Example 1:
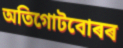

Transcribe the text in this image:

অতিগোটবোৰৰ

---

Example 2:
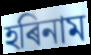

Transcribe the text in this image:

হৰিনাম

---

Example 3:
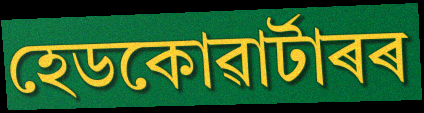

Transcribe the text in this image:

হেডকোৱাৰ্টাৰৰ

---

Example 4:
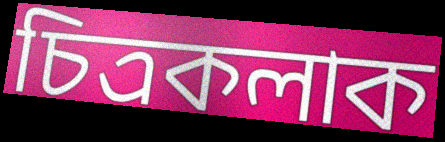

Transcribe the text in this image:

চিত্ৰকলাক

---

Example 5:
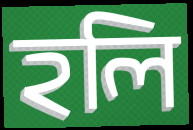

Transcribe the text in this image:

হলি